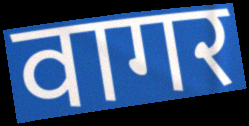
वागर